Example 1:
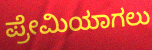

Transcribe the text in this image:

ಪ್ರೇಮಿಯಾಗಲು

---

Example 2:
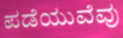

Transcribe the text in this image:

ಪಡೆಯುವೆವು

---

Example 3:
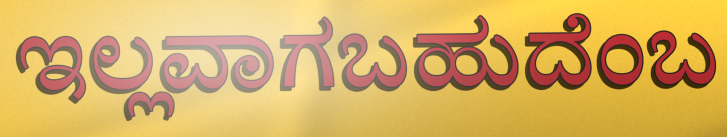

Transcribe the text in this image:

ಇಲ್ಲವಾಗಬಹುದೆಂಬ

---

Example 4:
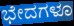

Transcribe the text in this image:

ಭೇದಗಳೂ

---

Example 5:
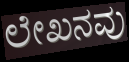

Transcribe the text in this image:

ಲೇಖನವು